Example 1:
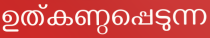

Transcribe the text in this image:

ഉത്കണ്ഠപ്പെടുന്ന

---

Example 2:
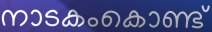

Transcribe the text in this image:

നാടകംകൊണ്ട്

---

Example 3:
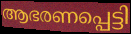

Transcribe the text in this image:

ആഭരണപ്പെട്ടി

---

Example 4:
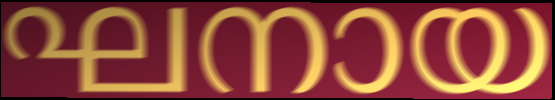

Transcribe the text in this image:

ഘനായ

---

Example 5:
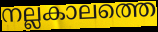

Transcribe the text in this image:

നല്ലകാലത്തെ